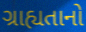
ગ્રાહ્યતાનો